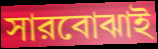
সারবোঝাই